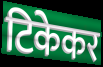
टिकेकर